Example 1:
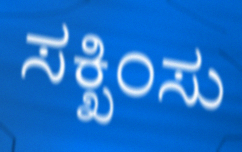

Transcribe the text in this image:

ಸಕ್ಖಿಂಸು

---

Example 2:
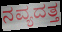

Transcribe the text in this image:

ನವ್ಯದತ್ತ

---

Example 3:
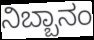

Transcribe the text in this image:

ನಿಬ್ಬಾನಂ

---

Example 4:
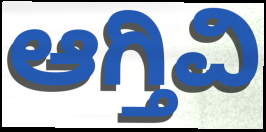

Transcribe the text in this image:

ಆಗ್ತಿವಿ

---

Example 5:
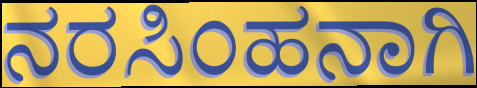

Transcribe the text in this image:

ನರಸಿಂಹನಾಗಿ